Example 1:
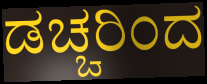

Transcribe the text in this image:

ಡಚ್ಚರಿಂದ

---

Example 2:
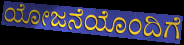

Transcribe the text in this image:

ಯೋಜನೆಯೊಂದಿಗೆ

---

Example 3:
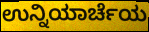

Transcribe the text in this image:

ಉನ್ನಿಯಾರ್ಚೆಯ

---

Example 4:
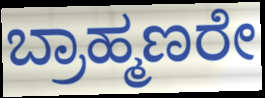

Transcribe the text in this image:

ಬ್ರಾಹ್ಮಣರೇ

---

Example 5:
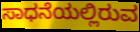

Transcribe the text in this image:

ಸಾಧನೆಯಲ್ಲಿರುವ